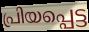
പ്രിയപ്പെട്ട